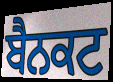
ਬੈਨਕਟ